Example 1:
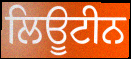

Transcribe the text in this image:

ਲਿਊਟੀਨ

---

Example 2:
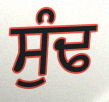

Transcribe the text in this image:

ਸੁੰਢ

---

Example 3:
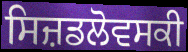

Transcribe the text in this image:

ਸਿਜ਼ਡਲੋਵਸਕੀ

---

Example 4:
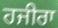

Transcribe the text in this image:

ਹਜੀਰਾ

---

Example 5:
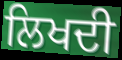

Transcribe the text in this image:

ਲਿਖਦੀ